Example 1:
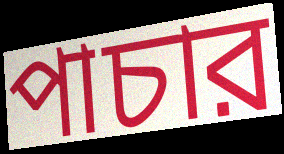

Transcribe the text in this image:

পাচার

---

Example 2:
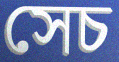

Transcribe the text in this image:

সেচ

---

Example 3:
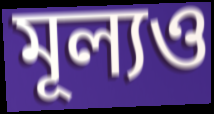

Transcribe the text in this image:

মূল্যও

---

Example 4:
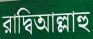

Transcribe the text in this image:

রাদ্বিআল্লাহু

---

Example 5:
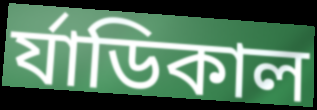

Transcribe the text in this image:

র্যাডিকাল